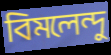
বিমলেন্দু